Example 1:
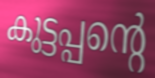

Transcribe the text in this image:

കുട്ടപ്പന്റെ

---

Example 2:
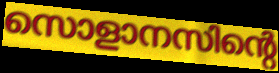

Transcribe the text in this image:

സൊളാനസിന്റെ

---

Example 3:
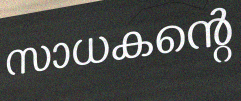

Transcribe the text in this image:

സാധകന്റെ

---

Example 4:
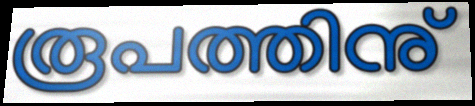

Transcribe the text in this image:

രൂപത്തിനു്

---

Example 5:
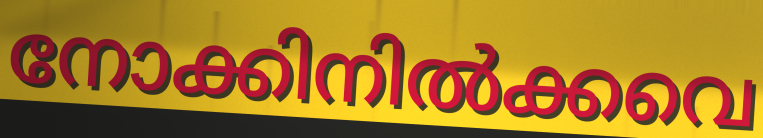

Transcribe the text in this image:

നോക്കിനിൽക്കവെ